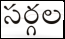
సర్గల